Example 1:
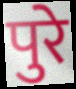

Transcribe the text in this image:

पुरे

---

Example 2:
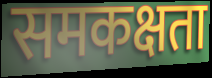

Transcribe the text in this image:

समकक्षता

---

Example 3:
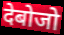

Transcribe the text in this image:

देबोजो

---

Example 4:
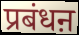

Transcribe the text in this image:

प्रबंधऩ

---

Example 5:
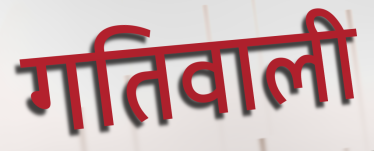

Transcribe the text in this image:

गतिवाली